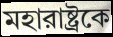
মহারাষ্ট্রকে